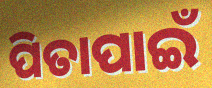
ପିତାପାଇଁ